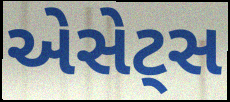
એસેટ્સ